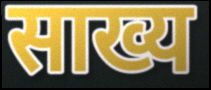
साख्य